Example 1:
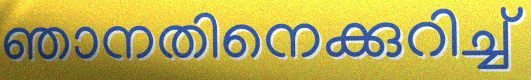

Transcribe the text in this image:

ഞാനതിനെക്കുറിച്ച്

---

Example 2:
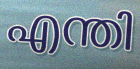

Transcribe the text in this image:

എന്തി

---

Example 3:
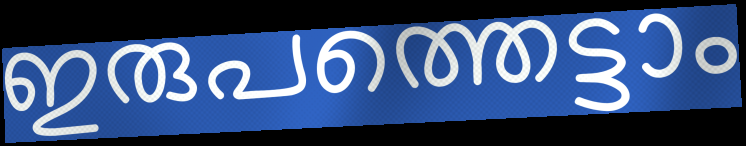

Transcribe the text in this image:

ഇരുപത്തെട്ടാം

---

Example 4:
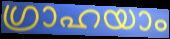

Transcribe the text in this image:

ഗ്രാഹയാം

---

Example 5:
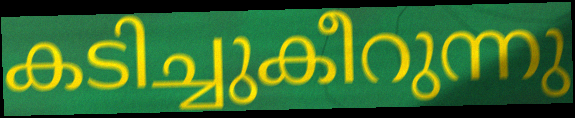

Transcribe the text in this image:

കടിച്ചുകീറുന്നു